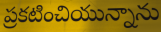
ప్రకటించియున్నాను